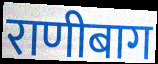
राणीबाग